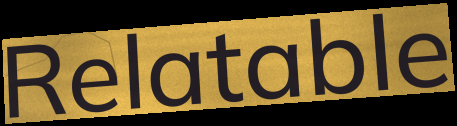
Relatable